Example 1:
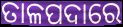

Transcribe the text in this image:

ତାଳପଦାରେ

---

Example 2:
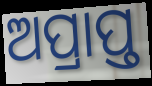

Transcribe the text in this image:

ଅପ୍ରାପ୍ତ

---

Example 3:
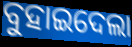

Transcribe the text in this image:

ବୁହାଇଦେଲା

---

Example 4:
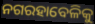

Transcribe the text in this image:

ନଗରହାବେଳିକୁ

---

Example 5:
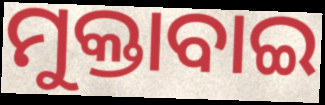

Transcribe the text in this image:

ମୁକ୍ତାବାଇ